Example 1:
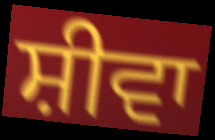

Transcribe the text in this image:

ਸ਼ੀਵਾ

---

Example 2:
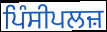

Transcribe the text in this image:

ਪਿੰਸੀਪਲਜ਼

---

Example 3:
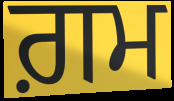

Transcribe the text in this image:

ਗ਼ਮ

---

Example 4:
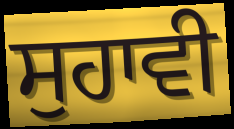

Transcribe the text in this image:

ਸੁਹਾਵੀ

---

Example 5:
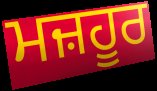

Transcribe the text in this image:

ਮਜ਼ਹੂਰ